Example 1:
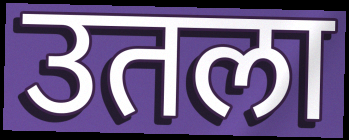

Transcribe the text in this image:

उतला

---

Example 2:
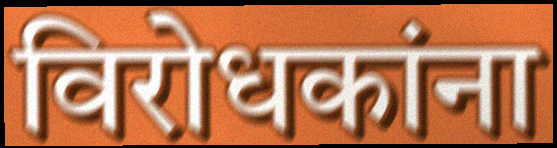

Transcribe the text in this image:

विरोधकांना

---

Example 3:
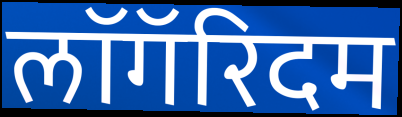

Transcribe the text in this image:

लॉगॅरिदम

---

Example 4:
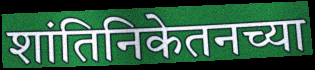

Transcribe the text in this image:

शांतिनिकेतनच्या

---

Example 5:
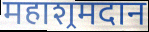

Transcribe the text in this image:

महाश्रमदान